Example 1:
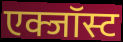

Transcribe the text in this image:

एक्जॉस्ट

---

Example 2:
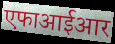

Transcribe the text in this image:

एफाआईआर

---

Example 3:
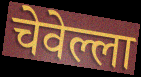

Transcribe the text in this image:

चेवेल्ला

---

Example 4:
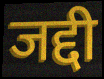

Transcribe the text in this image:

जद्दी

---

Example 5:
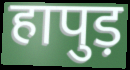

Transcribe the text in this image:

हापुड़